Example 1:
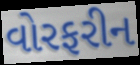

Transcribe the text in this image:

વોરફરીન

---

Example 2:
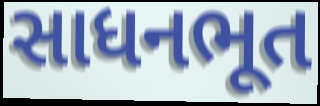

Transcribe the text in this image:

સાધનભૂત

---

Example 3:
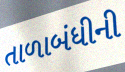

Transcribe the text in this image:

તાળાબંધીની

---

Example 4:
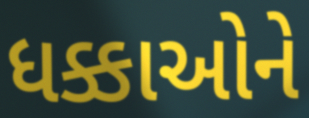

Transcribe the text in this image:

ધક્કાઓને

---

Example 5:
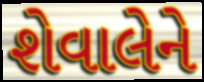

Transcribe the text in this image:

શેવાલેને